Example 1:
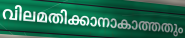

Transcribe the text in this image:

വിലമതിക്കാനാകാത്തതും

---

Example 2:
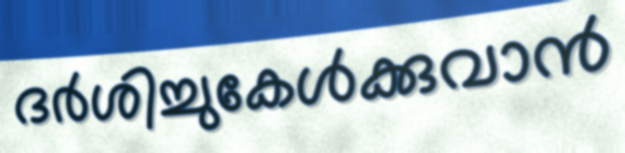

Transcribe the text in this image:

ദർശിച്ചുകേൾക്കുവാൻ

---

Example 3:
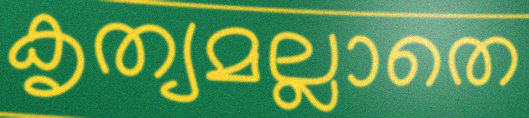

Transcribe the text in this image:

കൃത്യമല്ലാതെ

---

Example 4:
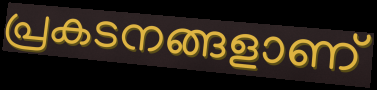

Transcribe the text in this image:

പ്രകടനങ്ങളാണ്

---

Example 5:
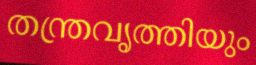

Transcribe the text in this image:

തന്ത്രവൃത്തിയും